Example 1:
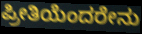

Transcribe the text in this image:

ಪ್ರೀತಿಯೆಂದರೇನು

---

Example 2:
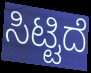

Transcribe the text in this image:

ಸಿಟ್ಟಿದೆ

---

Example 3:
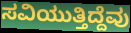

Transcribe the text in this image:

ಸವಿಯುತ್ತಿದ್ದೆವು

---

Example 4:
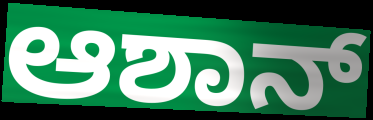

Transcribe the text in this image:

ಆಶಾನ್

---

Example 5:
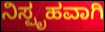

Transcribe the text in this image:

ನಿಸ್ಪೃಹವಾಗಿ